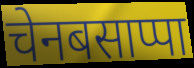
चेनबसाप्पा